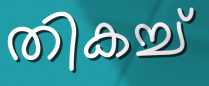
തികച്ച്